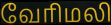
வேரிமலி